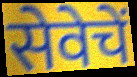
सेवेचें